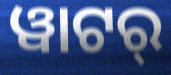
ୱାଟର୍